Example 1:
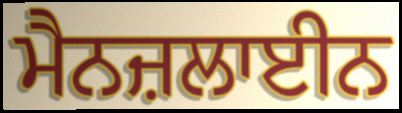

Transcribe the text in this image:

ਮੈਨਜ਼ਲਾਈਨ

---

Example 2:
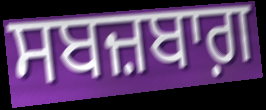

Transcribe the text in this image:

ਸਬਜ਼ਬਾਗ਼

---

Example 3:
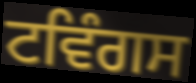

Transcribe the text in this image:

ਟਵਿੰਗਸ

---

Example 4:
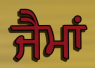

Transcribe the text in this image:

ਜੈਮਾਂ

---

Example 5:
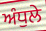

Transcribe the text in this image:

ਅੰਧੁਲੇ